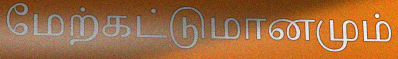
மேற்கட்டுமானமும்